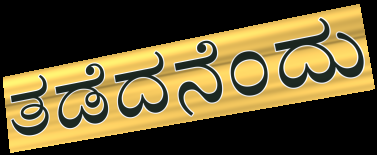
ತಡೆದನೆಂದು